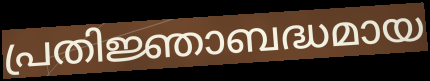
പ്രതിജ്ഞാബദ്ധമായ